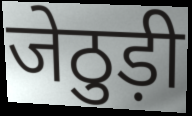
जेठुड़ी